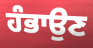
ਹੰਭਾਉਣ